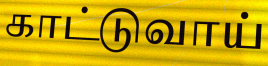
காட்டுவாய்